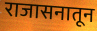
राजासनातून